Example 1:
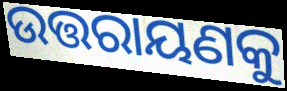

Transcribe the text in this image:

ଉତ୍ତରାୟଣକୁ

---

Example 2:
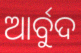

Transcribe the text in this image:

ଆର୍ବୁଦ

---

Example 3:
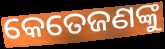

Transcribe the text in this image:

କେତେଜଣଙ୍କୁ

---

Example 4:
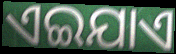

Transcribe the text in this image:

ଏଇଯାଏ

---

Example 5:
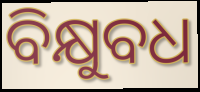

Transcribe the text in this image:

ବିକ୍ଷୁବଧ